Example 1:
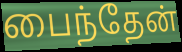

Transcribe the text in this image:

பைந்தேன்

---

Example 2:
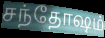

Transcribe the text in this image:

சந்தோஷம்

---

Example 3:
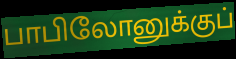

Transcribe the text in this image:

பாபிலோனுக்குப்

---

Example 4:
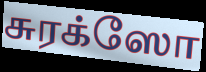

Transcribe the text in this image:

சுரக்ஸோ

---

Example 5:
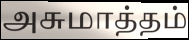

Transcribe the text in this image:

அசுமாத்தம்